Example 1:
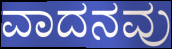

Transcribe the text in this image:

ವಾದನವು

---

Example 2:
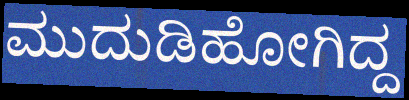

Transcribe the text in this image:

ಮುದುಡಿಹೋಗಿದ್ದ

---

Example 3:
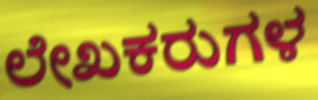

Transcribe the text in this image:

ಲೇಖಕರುಗಳ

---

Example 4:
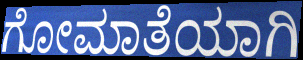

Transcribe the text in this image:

ಗೋಮಾತೆಯಾಗಿ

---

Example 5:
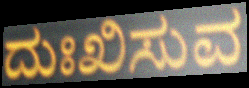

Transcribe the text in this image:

ದುಃಖಿಸುವ